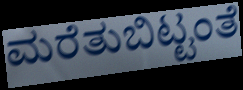
ಮರೆತುಬಿಟ್ಟಂತೆ